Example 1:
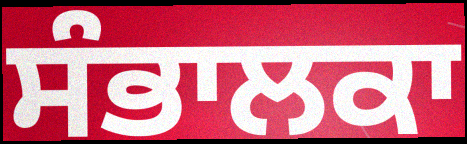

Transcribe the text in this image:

ਸੰਭਾਲਕਾ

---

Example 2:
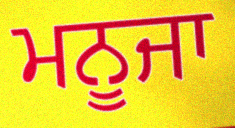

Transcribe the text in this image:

ਮਨੂਜਾ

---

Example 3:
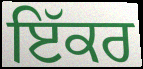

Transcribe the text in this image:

ਇੱਕਰ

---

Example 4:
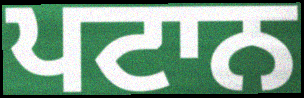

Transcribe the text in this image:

ਪਟਾਨ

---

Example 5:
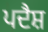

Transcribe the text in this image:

ਪਦੈਸ਼